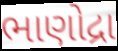
ભાણોદ્રા